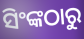
ସିଂଙ୍କଠାରୁ